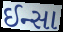
ઈન્સા